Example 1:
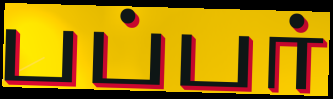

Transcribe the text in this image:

பப்பர்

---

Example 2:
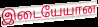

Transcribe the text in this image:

இடையேயான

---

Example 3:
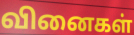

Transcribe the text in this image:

வினைகள்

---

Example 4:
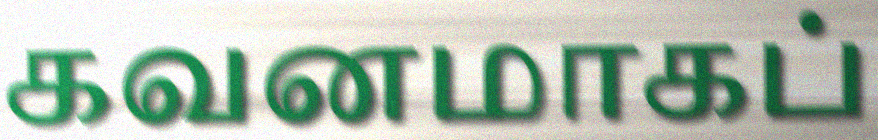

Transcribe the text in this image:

கவனமாகப்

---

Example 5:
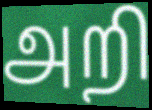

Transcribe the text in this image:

அறி